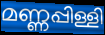
മണ്ണപ്പിള്ളി